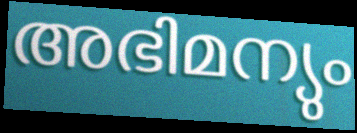
അഭിമന്യും